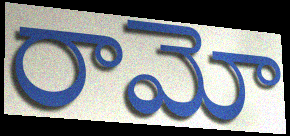
రామో